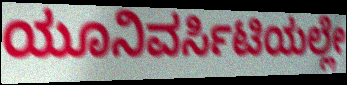
ಯೂನಿವರ್ಸಿಟಿಯಲ್ಲೇ